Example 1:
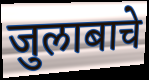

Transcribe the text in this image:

जुलाबाचे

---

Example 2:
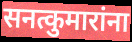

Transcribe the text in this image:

सनत्कुमारांना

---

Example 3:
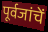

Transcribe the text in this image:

पूर्वजांचें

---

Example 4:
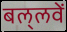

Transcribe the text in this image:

बल्लवें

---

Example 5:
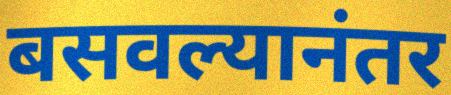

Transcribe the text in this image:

बसवल्यानंतर